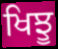
ਖਿਝੂ